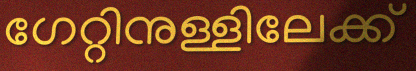
ഗേറ്റിനുള്ളിലേക്ക്